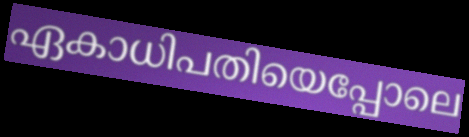
ഏകാധിപതിയെപ്പോലെ